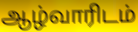
ஆழ்வாரிடம்